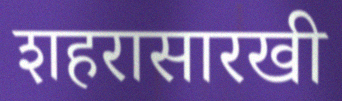
शहरासारखी